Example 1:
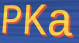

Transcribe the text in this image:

PKa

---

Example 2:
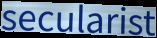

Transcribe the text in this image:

secularist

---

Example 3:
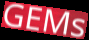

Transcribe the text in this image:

GEMs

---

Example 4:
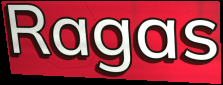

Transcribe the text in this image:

Ragas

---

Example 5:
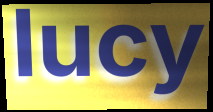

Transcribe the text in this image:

lucy